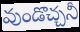
వుండొచ్చనీ